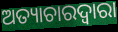
ଅତ୍ୟାଚାରଦ୍ୱାରା